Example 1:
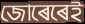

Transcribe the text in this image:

জোৰেৰেই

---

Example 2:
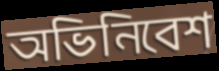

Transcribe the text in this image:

অভিনিবেশ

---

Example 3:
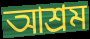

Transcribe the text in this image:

আশ্ৰম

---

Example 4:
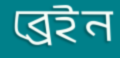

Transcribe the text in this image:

ব্ৰেইন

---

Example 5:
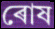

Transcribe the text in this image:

ৰোষ